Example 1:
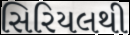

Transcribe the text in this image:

સિરિયલથી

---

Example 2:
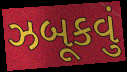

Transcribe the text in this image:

ઝબૂકવું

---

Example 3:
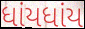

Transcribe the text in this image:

ધાંયધાંય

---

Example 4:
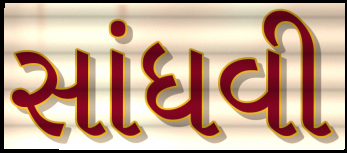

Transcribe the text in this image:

સાંધવી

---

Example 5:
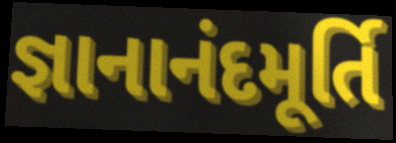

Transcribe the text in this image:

જ્ઞાનાનંદમૂર્તિ